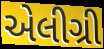
એલીગ્રી